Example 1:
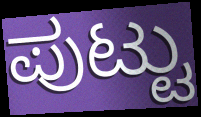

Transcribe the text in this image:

ಪುಟ್ಟು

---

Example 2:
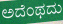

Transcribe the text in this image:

ಅದೆಂಥದು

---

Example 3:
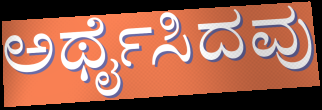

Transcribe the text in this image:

ಅರ್ಥೈಸಿದವು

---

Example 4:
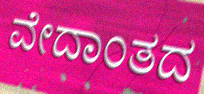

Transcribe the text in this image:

ವೇದಾಂತದ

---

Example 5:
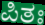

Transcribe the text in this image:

ಪಿತಃ